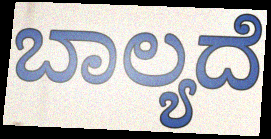
ಬಾಲ್ಯದೆ